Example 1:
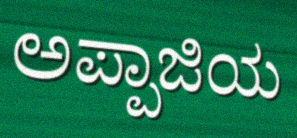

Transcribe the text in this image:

ಅಪ್ಪಾಜಿಯ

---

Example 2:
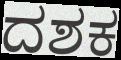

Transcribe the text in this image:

ದಶಕ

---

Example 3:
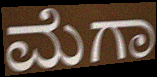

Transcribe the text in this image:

ಮೆಗಾ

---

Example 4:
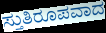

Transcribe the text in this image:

ಸ್ತುತಿರೂಪವಾದ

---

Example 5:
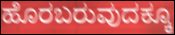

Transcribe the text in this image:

ಹೊರಬರುವುದಕ್ಕೂ